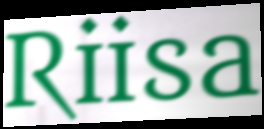
Riisa